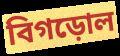
বিগড়োল